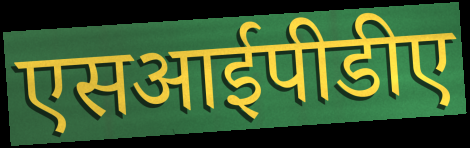
एसआईपीडीए